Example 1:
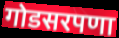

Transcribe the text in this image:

गोडसरपणा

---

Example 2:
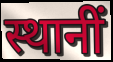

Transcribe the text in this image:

स्थानीं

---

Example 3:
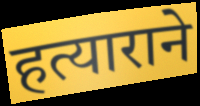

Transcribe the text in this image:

हत्याराने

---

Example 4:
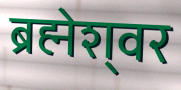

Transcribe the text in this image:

ब्रह्मेश्वर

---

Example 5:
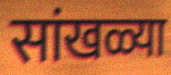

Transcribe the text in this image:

सांखळ्या